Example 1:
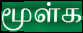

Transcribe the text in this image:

மூள்க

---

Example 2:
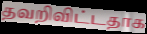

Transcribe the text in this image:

தவறிவிட்டதாக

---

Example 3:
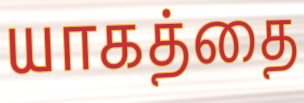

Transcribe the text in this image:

யாகத்தை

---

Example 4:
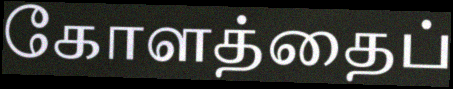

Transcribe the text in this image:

கோளத்தைப்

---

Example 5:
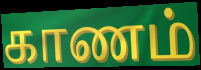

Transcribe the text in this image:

காணம்